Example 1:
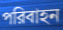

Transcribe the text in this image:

পরিবাহন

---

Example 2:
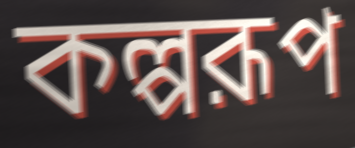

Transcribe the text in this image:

কল্পরূপ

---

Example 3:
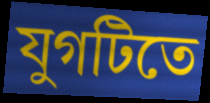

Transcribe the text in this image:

যুগটিতে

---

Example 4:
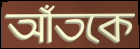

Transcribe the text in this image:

আঁতকে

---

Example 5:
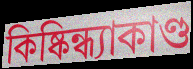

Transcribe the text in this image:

কিষ্কিন্ধ্যাকাণ্ড